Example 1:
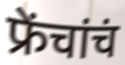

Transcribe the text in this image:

फ्रेंचांचं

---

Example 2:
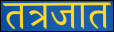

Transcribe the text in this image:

तत्रजात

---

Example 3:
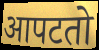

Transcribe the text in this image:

आपटतो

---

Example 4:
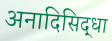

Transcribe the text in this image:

अनादिसिद्धा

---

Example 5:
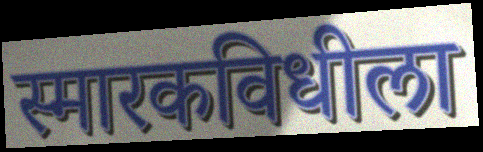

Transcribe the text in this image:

स्मारकविधीला